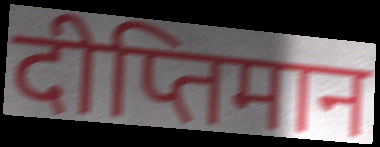
दीप्तिमान